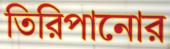
তিরিপানোর